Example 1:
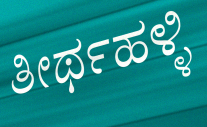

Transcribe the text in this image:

ತೀರ್ಥಹಳ್ಳಿ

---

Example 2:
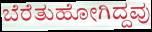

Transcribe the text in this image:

ಬೆರೆತುಹೋಗಿದ್ದವು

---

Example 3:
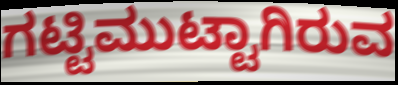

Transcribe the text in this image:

ಗಟ್ಟಿಮುಟ್ಟಾಗಿರುವ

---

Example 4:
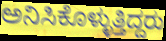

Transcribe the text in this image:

ಅನಿಸಿಕೊಳ್ಳುತ್ತಿದ್ದರು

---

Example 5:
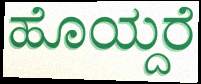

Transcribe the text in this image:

ಹೊಯ್ದರೆ